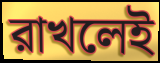
রাখলেই